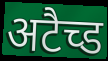
अटैच्ड